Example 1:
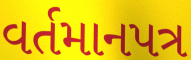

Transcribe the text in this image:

વર્તમાનપત્ર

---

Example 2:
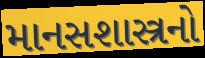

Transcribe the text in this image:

માનસશાસ્ત્રનો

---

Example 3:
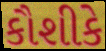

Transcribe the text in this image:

કૌશીકે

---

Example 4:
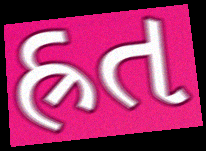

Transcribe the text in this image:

હ્રત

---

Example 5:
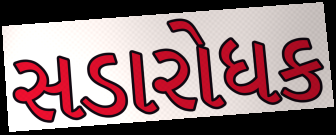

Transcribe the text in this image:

સડારોધક